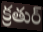
క్రతుర్